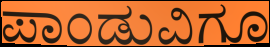
ಪಾಂಡುವಿಗೂ